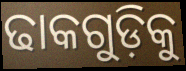
ଢାକଗୁଡ଼ିକୁ